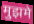
मुझमे